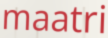
maatri